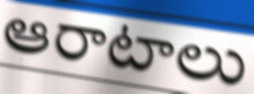
ఆరాటాలు